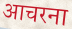
आचरना